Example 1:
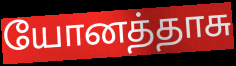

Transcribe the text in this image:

யோனத்தாசு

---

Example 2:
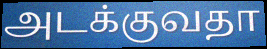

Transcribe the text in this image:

அடக்குவதா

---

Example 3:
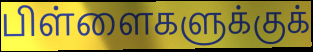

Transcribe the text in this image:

பிள்ளைகளுக்குக்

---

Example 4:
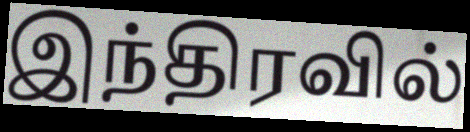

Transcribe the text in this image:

இந்திரவில்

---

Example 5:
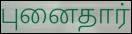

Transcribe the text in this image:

புனைதார்